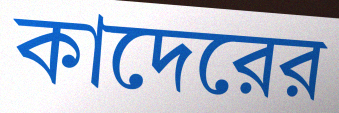
কাদেরের